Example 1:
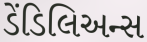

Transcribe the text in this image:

ડેંડિલિઅન્સ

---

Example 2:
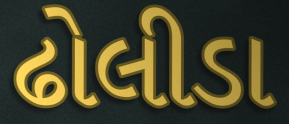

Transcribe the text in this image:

ઢોલીડા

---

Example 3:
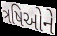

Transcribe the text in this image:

ત્રષિઓને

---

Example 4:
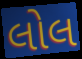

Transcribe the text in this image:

લોલ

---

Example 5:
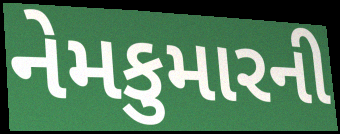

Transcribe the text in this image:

નેમકુમારની